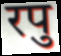
रपु